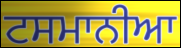
ਟਸਮਾਨੀਆ